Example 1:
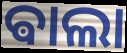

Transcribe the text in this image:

ଵାଲା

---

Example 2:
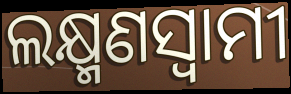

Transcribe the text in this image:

ଲକ୍ଷ୍ମଣସ୍ଵାମୀ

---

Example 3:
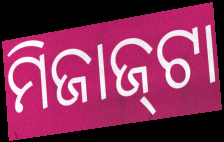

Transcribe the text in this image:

ମିଜାଜ୍‌ଟା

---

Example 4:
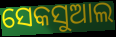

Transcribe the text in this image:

ସେକସୁଆଲ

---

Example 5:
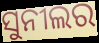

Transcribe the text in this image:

ସୁନୀଲର